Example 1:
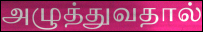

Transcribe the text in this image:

அழுத்துவதால்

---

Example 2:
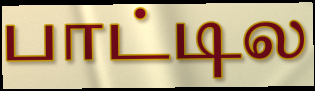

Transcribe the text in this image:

பாட்டில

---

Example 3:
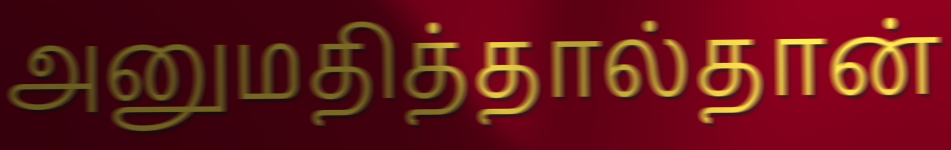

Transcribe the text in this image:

அனுமதித்தால்தான்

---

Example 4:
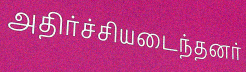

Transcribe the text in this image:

அதிர்ச்சியடைந்தனர்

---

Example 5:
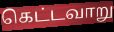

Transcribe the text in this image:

கெட்டவாறு